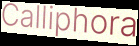
Calliphora